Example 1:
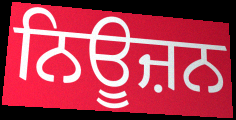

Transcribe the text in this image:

ਨਿਊਜ਼ਨ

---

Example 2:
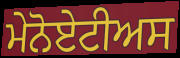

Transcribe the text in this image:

ਮੇਨੋਏਟੀਅਸ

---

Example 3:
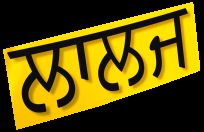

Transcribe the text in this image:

ਲਾਲਜ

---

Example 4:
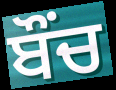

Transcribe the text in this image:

ਬੌਂਚ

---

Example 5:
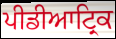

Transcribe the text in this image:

ਪੀਡੀਆਟ੍ਰਿਕ